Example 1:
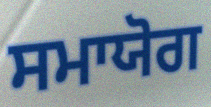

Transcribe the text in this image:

ਸਮਾਯੋਗ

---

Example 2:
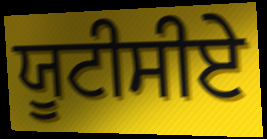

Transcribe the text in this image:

ਯੂਟੀਸੀਏ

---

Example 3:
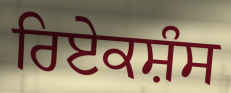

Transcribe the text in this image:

ਰਿਏਕਸ਼ੰਸ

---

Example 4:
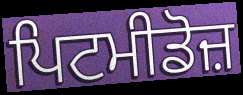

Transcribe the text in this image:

ਪਿਟਮੀਡੋਜ਼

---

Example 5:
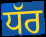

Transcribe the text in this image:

ਧੱਰ